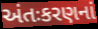
અંતઃકરણનાં